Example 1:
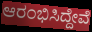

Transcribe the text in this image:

ಆರಂಭಿಸಿದ್ದೇವೆ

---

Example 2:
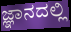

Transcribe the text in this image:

ಜ್ಞಾನದಲ್ಲಿ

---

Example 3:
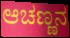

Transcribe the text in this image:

ಆಚಣ್ಣನ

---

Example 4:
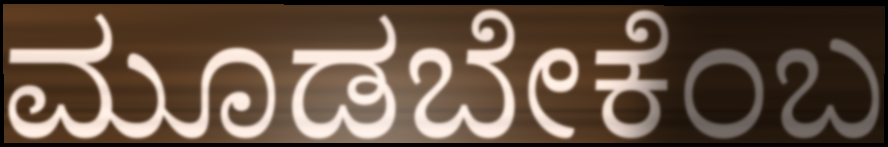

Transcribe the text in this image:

ಮೂಡಬೇಕೆಂಬ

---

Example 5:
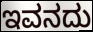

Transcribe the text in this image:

ಇವನದು